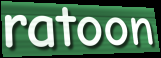
ratoon